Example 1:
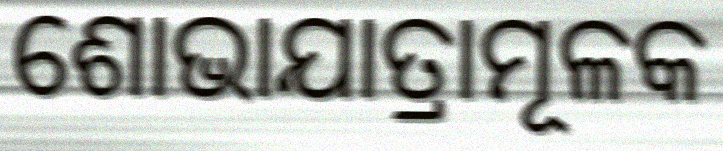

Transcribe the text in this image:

ଶୋଭାଯାତ୍ରାମୂଳକ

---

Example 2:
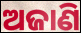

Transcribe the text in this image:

ଅଜାଣି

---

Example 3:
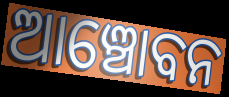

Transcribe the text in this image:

ଆଞ୍ଚୋବନ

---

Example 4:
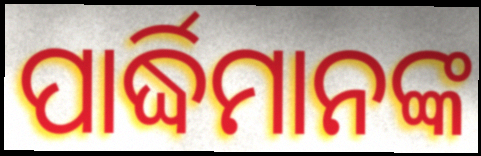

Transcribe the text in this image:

ପାର୍ଦ୍ଧିମାନଙ୍କ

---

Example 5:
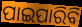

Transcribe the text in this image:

ପାଇପାରିବି